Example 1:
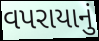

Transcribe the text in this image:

વપરાયાનું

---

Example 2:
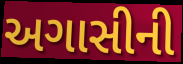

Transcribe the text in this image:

અગાસીની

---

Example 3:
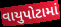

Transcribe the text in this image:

વાયુપોટામાં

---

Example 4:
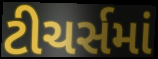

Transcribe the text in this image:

ટીચર્સમાં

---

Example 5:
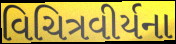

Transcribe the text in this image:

વિચિત્રવીર્યના